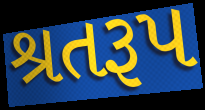
શ્રતરૂપ